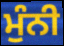
ਮੁੰਨੀ